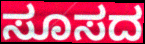
ಸೂಸದ